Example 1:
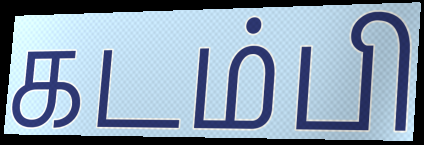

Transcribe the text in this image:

கடம்பி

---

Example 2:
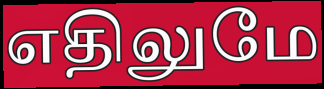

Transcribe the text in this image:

எதிலுமே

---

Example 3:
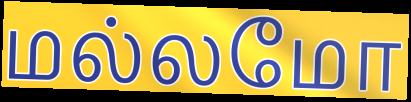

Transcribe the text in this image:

மல்லமோ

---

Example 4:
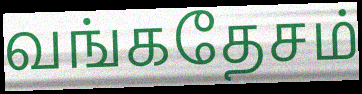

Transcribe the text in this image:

வங்கதேசம்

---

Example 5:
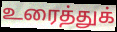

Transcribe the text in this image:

உரைத்துக்